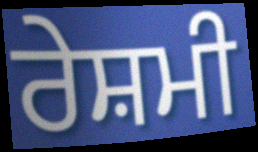
ਰੇਸ਼ਮੀ